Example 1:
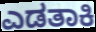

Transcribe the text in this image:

ಎಡತಾಕಿ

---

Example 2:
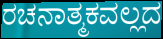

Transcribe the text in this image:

ರಚನಾತ್ಮಕವಲ್ಲದ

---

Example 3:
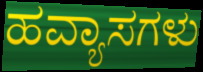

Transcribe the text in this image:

ಹವ್ಯಾಸಗಳು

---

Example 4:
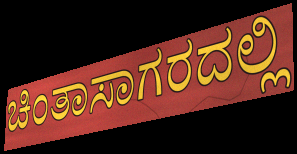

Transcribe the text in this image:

ಚಿಂತಾಸಾಗರದಲ್ಲಿ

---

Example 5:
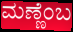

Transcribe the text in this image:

ಮಣ್ಣೆಂಬ